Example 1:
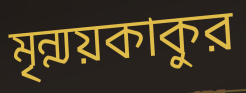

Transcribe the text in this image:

মৃন্ময়কাকুর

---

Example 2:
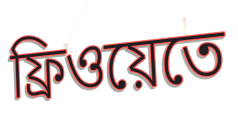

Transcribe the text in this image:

ফ্রিওয়েতে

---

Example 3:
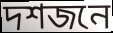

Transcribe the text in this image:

দশজনে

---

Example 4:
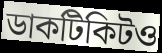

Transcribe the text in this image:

ডাকটিকিটও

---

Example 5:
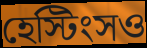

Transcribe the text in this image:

হেস্টিংসও